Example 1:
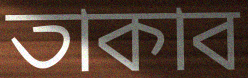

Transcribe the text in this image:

তাকাব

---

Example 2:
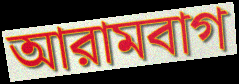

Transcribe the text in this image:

আরামবাগ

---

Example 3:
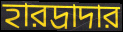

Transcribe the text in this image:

হারদ্রাদার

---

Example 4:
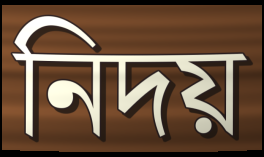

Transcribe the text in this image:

নিদয়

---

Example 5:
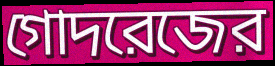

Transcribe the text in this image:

গোদরেজের